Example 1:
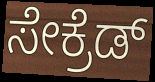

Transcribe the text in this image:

ಸೇಕ್ರೆಡ್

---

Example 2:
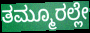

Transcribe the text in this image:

ತಮ್ಮೂರಲ್ಲೇ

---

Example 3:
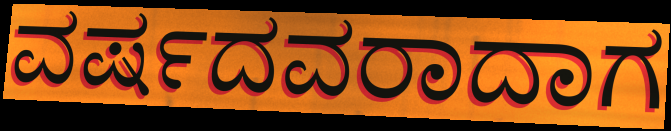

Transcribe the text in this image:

ವರ್ಷದವರಾದಾಗ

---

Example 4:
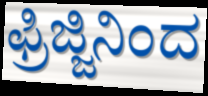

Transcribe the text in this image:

ಫ್ರಿಜ್ಜಿನಿಂದ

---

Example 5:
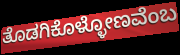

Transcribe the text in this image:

ತೊಡಗಿಕೊಳ್ಳೋಣವೆಂಬ